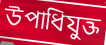
উপাধিযুক্ত